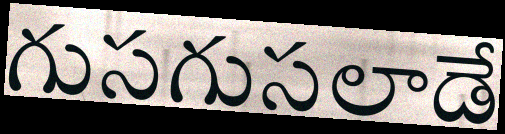
గుసగుసలాడే